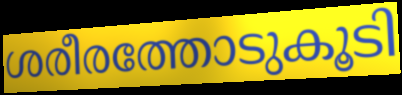
ശരീരത്തോടുകൂടി